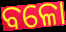
ବଳୋ